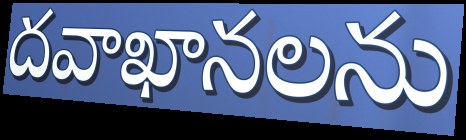
దవాఖానలను